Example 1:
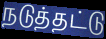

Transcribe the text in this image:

நடுத்தட்டு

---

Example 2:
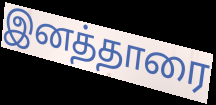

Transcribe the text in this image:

இனத்தாரை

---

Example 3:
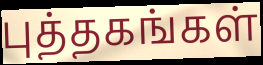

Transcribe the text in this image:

புத்தகங்கள்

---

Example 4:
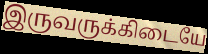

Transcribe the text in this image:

இருவருக்கிடையே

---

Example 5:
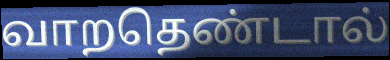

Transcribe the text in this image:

வாறதெண்டால்